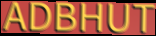
ADBHUT